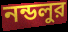
নন্ডলুর